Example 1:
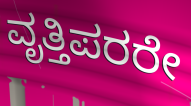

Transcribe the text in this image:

ವೃತ್ತಿಪರರೇ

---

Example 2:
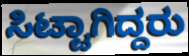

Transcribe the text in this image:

ಸಿಟ್ಟಾಗಿದ್ದರು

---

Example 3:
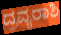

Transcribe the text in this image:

ದ್ರವ್ಯರಾಶಿ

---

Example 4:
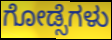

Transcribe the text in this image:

ಗೋಡ್ಸೆಗಳು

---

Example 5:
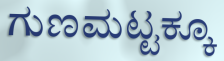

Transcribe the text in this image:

ಗುಣಮಟ್ಟಕ್ಕೂ